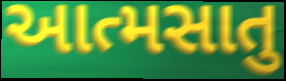
આત્મસાતુ